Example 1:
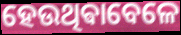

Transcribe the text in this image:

ହେଉଥିଵାବେଳେ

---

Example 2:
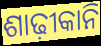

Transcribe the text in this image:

ଶାଢ଼ୀକାନି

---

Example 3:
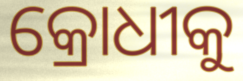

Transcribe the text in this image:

କ୍ରୋଧୀକୁ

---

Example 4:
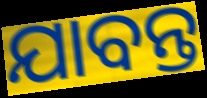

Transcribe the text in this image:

ଯାବନ୍ତ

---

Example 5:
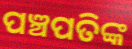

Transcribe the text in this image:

ପଞ୍ଚପତିଙ୍କ